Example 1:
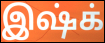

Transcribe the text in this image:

இஷ்க்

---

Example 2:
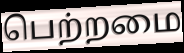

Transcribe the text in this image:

பெற்றமை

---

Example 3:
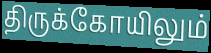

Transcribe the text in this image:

திருக்கோயிலும்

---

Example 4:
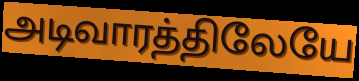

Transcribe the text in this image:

அடிவாரத்திலேயே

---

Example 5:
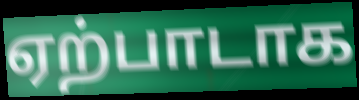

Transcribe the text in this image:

ஏற்பாடாக